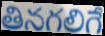
తినగలిగే